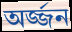
অর্জ্জন